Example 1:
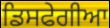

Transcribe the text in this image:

ਡਿਸਫੇਗੀਆ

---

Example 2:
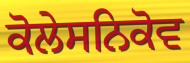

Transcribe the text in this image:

ਕੋਲੇਸਨਿਕੋਵ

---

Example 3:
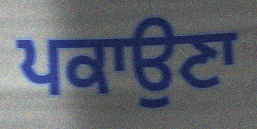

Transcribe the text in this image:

ਪਕਾਉਣਾ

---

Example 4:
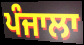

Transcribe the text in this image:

ਪੰਜਾਲਾ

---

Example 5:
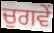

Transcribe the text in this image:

ਚੁਗਵੇਂ